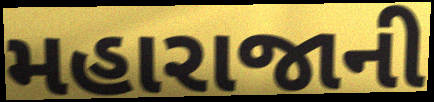
મહારાજાની